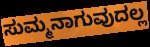
ಸುಮ್ಮನಾಗುವುದಲ್ಲ